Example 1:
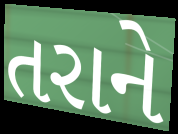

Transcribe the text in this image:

તરાને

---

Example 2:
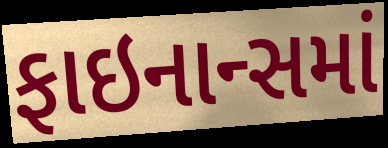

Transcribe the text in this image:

ફાઇનાન્સમાં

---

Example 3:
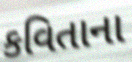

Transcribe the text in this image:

કવિતાના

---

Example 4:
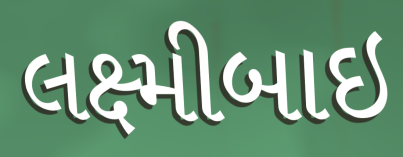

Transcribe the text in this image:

લક્ષ્મીબાઇ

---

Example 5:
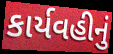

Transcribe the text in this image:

કાર્યવહીનું